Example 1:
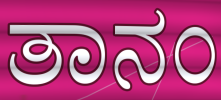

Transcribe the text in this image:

ತಾನಂ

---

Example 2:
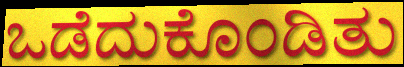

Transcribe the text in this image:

ಒಡೆದುಕೊಂಡಿತು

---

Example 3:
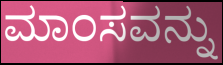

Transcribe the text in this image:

ಮಾಂಸವನ್ನು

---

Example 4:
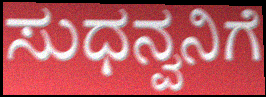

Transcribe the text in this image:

ಸುಧನ್ವನಿಗೆ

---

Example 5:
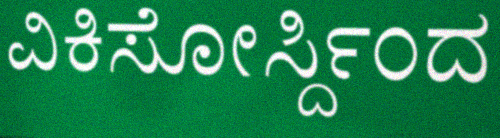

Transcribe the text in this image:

ವಿಕಿಸೋರ್ಸ್ದಿಂದ